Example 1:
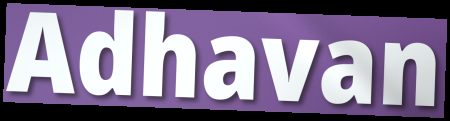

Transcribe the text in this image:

Adhavan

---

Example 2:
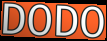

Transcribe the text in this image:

DODO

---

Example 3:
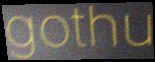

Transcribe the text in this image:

gothu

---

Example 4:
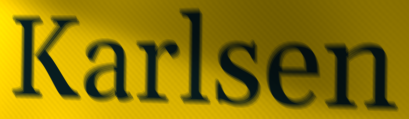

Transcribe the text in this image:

Karlsen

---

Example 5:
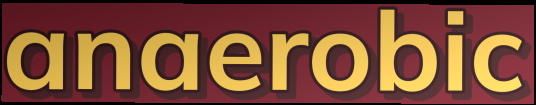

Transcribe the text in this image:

anaerobic